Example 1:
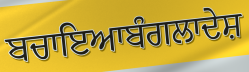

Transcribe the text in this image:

ਬਚਾਇਆਬੰਗਲਾਦੇਸ਼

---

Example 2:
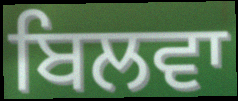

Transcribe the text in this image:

ਬਿਲਵਾ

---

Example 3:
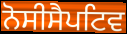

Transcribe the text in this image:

ਨੋਸੀਸੈਪਟਿਵ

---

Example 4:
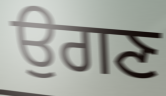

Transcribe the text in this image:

ਉਗਣ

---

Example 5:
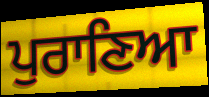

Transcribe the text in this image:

ਪੁਰਾਣਿਆ